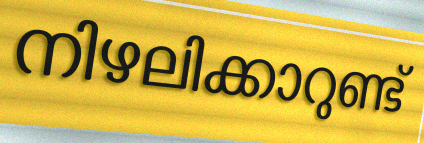
നിഴലിക്കാറുണ്ട്